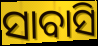
ସାବାସି